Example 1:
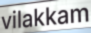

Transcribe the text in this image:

vilakkam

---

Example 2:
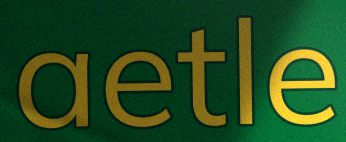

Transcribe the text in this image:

aetle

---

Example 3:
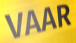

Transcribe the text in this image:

VAAR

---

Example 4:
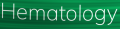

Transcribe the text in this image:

Hematology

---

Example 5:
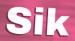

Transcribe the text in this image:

Sik